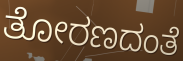
ತೋರಣದಂತೆ